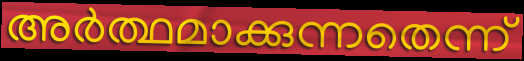
അർത്ഥമാക്കുന്നതെന്ന്